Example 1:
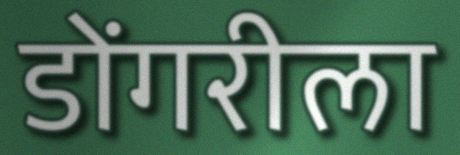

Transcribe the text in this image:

डोंगरीला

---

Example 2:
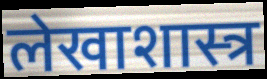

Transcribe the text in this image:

लेखाशास्त्र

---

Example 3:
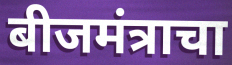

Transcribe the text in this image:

बीजमंत्राचा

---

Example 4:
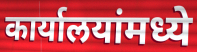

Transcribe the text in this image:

कार्यालयांमध्ये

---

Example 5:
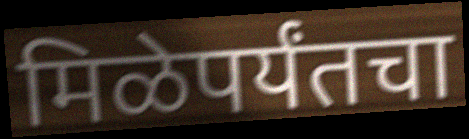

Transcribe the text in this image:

मिळेपर्यंतचा